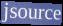
jsource